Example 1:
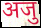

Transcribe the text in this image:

अजु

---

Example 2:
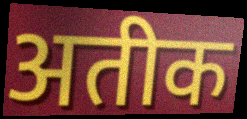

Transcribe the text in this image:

अतीक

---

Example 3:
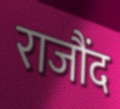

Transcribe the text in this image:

राजौंद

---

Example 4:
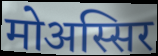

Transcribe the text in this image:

मोअस्सिर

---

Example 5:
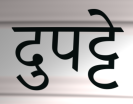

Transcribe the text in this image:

दुपट्टे